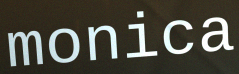
monica